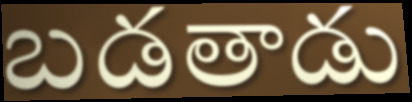
బడతాడు